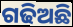
ଗଢିଅଛି